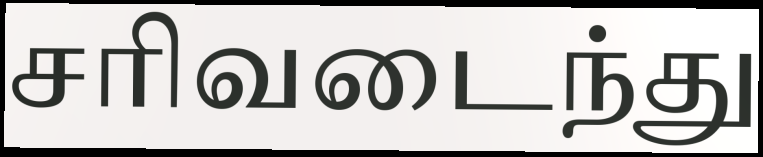
சரிவடைந்து